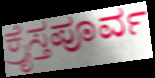
ಕ್ರೈಸ್ತಪೂರ್ವ